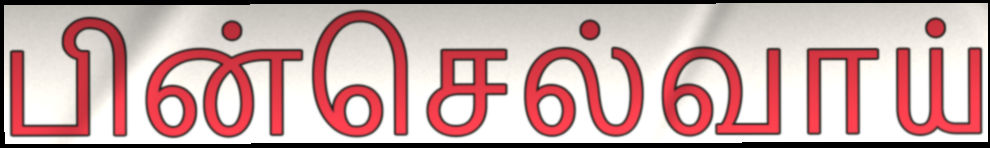
பின்செல்வாய்